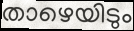
താഴെയിടും